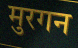
मुरगन